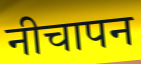
नीचापन